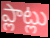
ప్లాట్లు